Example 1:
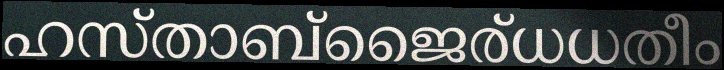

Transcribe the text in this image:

ഹസ്താബ്ജൈര്ധധതീം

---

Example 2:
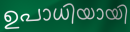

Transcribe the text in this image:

ഉപാധിയായി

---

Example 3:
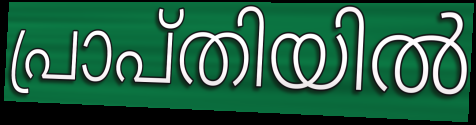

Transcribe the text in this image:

പ്രാപ്തിയിൽ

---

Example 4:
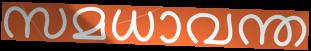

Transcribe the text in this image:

സമധാവന്ത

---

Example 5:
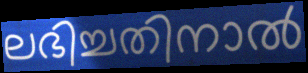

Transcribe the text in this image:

ലഭിച്ചതിനാൽ